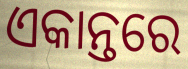
ଏକାନ୍ତରେ